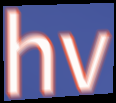
hv